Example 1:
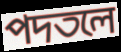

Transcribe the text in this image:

পদতলে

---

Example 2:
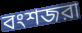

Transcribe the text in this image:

বংশজরা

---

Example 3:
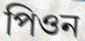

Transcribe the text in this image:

পিওন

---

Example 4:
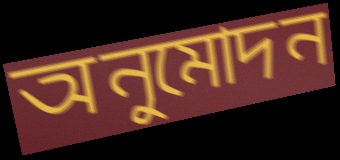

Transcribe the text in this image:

অনুমোদন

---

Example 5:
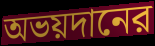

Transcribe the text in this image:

অভয়দানের